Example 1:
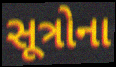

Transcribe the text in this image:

સૂત્રોના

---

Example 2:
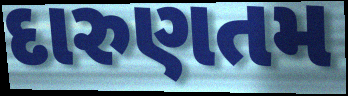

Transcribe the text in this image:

દારુણતમ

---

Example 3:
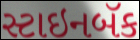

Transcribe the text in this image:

સ્ટાઇનબૅક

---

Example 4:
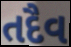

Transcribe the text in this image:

તદૈવ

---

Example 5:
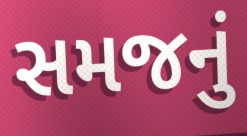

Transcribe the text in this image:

સમજનું